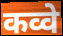
कव्वे